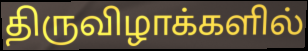
திருவிழாக்களில்